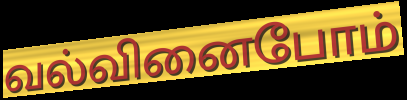
வல்வினைபோம்